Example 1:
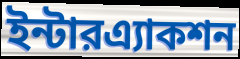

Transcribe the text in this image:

ইন্টারএ্যাকশন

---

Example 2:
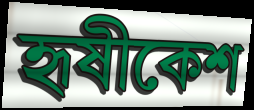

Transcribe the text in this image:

হৃষীকেশ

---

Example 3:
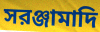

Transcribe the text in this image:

সরঞ্জামাদি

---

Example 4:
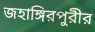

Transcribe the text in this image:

জহাঙ্গিরপুরীর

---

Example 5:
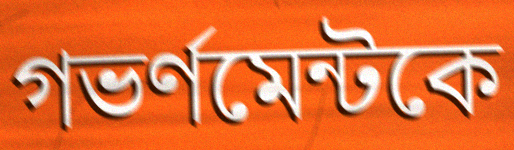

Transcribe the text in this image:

গভর্ণমেন্টকে